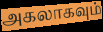
அகலாகவும்